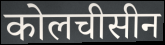
कोलचीसीन